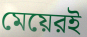
মেয়েরই